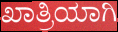
ಖಾತ್ರಿಯಾಗಿ